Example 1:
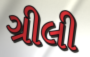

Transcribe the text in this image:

ગ્રીલી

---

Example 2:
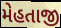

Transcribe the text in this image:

મેહતાજી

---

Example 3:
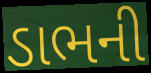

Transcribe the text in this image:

ડાભની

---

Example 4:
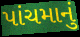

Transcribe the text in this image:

પાંચમાનું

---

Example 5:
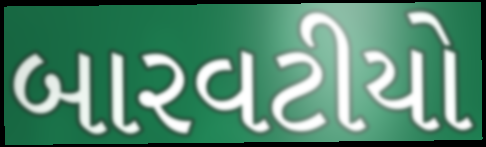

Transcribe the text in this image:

બારવટીયો